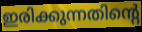
ഇരിക്കുന്നതിന്റെ